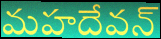
మహదేవన్